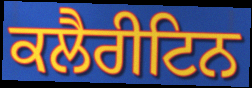
ਕਲੈਰੀਟਿਨ